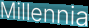
Millennia